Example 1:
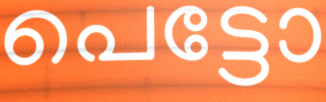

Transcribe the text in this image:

പെട്ടോ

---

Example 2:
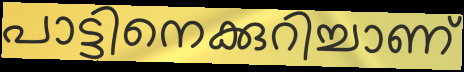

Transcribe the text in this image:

പാട്ടിനെക്കുറിച്ചാണ്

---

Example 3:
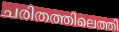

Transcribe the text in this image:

ചരിതത്തിലെത്തി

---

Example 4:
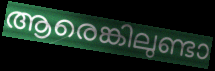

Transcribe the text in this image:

ആരെങ്കിലുണ്ടാ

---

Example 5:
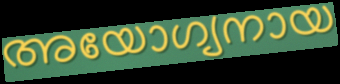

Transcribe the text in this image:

അയോഗ്യനായ